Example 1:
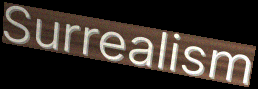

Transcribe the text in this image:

Surrealism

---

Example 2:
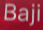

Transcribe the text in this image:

Baji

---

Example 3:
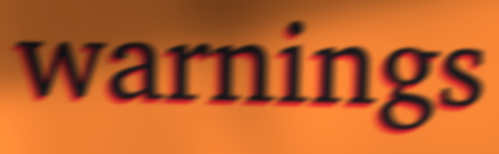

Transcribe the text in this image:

warnings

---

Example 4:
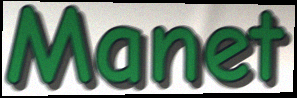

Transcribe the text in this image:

Manet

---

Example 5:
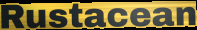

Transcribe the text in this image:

Rustacean